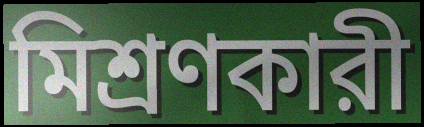
মিশ্রণকারী